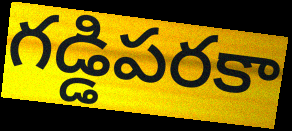
గడ్డిపరకా